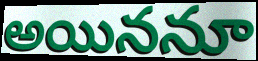
అయిననూ